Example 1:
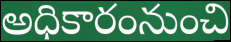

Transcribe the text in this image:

అధికారంనుంచి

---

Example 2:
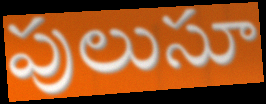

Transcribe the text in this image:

పులుసూ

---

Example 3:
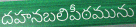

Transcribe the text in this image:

దహనబలిపీఠమును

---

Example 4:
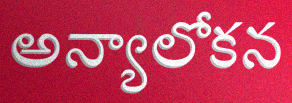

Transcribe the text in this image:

అన్యాలోకన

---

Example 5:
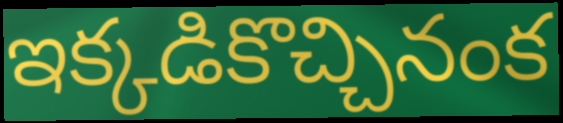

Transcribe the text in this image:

ఇక్కడికొచ్చినంక